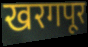
खरगपूर